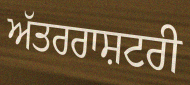
ਅੱਤਰਰਾਸ਼ਟਰੀ